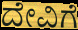
ದೇವಿಗೆ